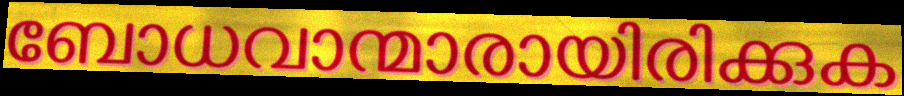
ബോധവാന്മാരായിരിക്കുക